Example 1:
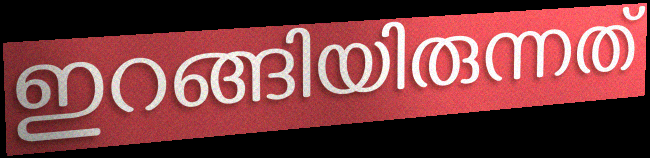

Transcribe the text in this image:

ഇറങ്ങിയിരുന്നത്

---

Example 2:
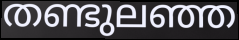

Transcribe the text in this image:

തണ്ടുലഞ്ഞ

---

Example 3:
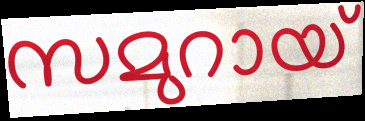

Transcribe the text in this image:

സമുറായ്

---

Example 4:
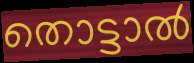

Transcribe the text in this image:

തൊട്ടാൽ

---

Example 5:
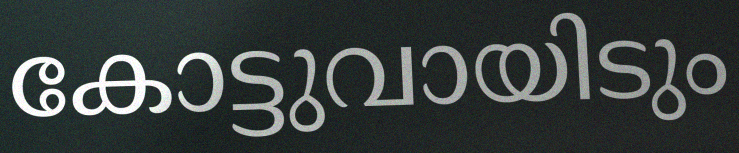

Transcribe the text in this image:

കോട്ടുവായിടും